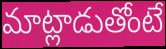
మాట్లాడుతోంటే